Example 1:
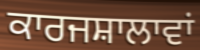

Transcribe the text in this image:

ਕਾਰਜਸ਼ਾਲਾਵਾਂ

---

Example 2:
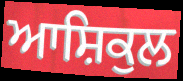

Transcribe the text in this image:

ਆਸ਼ਿਕੁਲ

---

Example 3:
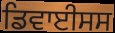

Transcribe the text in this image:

ਡਿਵਾਈਸਸ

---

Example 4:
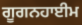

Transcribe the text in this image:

ਗੂਗਨਹਾਈਮ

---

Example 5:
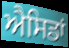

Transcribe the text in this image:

ਐਸਿਡਾਂ